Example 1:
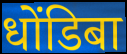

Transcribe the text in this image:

धोंडिबा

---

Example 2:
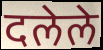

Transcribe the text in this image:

दलेले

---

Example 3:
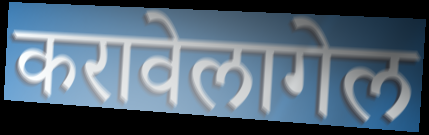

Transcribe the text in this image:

करावेलागेल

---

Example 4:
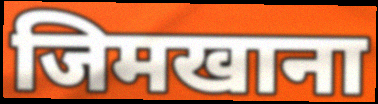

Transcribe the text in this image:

जिमखाना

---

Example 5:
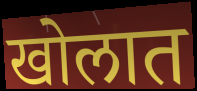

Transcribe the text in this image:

खोलात